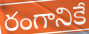
రంగానికే